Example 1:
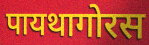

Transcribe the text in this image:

पायथागोरस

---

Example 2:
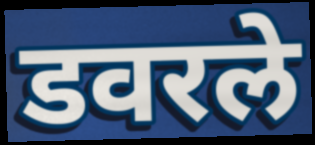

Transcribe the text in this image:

डवरले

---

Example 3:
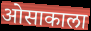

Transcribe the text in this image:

ओसाकाला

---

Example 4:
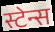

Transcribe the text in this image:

स्टेन्स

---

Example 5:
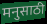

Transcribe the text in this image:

मनुसाठी